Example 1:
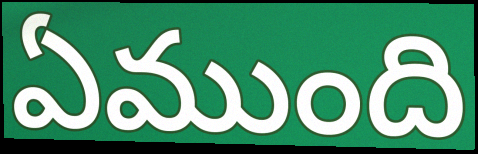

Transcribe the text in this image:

ఏముంది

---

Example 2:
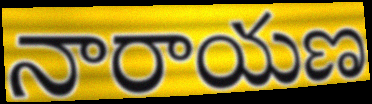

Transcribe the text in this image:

నారాయణ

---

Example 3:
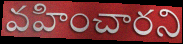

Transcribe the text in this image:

వహించారని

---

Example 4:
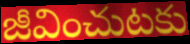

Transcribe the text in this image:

జీవించుటకు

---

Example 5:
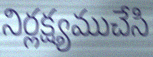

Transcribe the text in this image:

నిర్లక్ష్యముచేసి